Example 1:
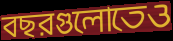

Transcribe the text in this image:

বছরগুলোতেও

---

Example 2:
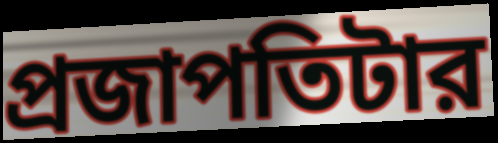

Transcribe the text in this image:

প্রজাপতিটার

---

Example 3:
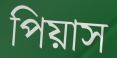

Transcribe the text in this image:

পিয়াস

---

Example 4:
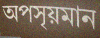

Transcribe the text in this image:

অপসৃয়মান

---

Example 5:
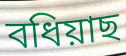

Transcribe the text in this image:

বধিয়াছ